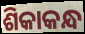
ଶିକାକନ୍ଧ